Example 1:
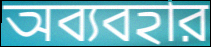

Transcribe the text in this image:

অব্যবহার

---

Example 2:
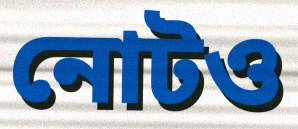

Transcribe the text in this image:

নোটও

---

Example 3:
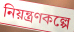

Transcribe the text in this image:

নিয়ন্ত্রণকল্পে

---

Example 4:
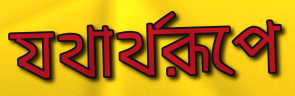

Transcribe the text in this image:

যথার্থরূপে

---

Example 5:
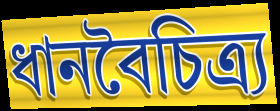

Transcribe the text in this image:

ধানবৈচিত্র্য